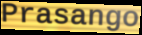
Prasango